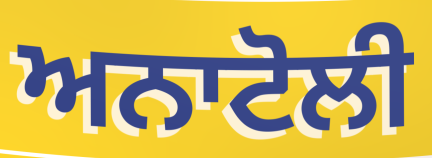
ਅਨਾਟੋਲੀ